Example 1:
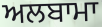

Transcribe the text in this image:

ਅਲਬਾਮਾ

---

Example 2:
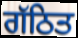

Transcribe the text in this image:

ਗੱਠਿਤ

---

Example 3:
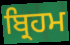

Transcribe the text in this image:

ਬ੍ਰਿਹਮ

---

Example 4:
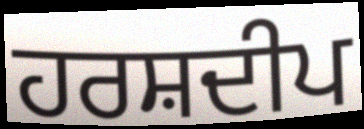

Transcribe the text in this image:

ਹਰਸ਼ਦੀਪ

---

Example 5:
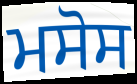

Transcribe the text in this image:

ਮਸੋਸ